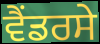
ਵੈਂਡਰਸੇ